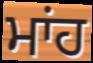
ਮਾਂਹ